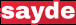
sayde